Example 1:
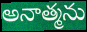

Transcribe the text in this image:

అనాత్మను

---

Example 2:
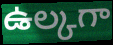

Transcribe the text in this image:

ఉల్కగా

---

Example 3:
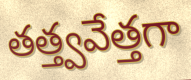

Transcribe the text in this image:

తత్త్వవేత్తగా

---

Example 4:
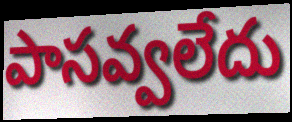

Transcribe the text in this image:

పాసవ్వలేదు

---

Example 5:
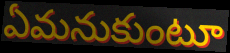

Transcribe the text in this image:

ఏమనుకుంటూ